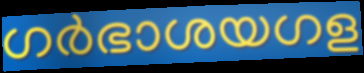
ഗർഭാശയഗള